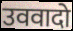
उववादो